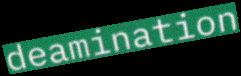
deamination